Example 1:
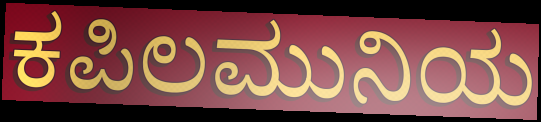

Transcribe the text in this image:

ಕಪಿಲಮುನಿಯ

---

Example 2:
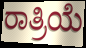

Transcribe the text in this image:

ರಾತ್ರಿಯೆ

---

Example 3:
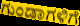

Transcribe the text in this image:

ಗುಂಡಾಗಳಿಗೆ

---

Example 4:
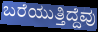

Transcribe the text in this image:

ಬರೆಯುತ್ತಿದ್ದೆವು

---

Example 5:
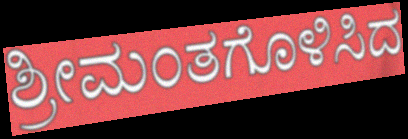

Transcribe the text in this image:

ಶ್ರೀಮಂತಗೊಳಿಸಿದ